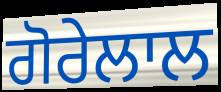
ਗੋਰੇਲਾਲ